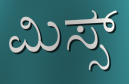
ಮಿಸ್ಸ್